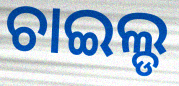
ଚାଇଲ୍ଡ